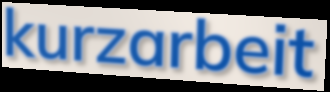
kurzarbeit